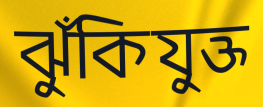
ঝুঁকিযুক্ত